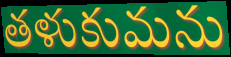
తళుకుమను